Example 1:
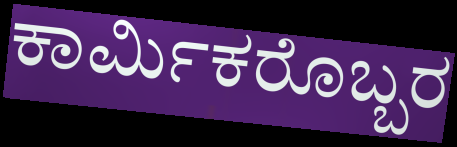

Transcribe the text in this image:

ಕಾರ್ಮಿಕರೊಬ್ಬರ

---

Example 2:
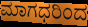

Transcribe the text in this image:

ಮಾಗಧರಿಂದ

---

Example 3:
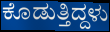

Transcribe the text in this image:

ಕೊಡುತ್ತಿದ್ದಳು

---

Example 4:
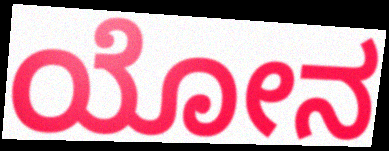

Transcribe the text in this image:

ಯೋನ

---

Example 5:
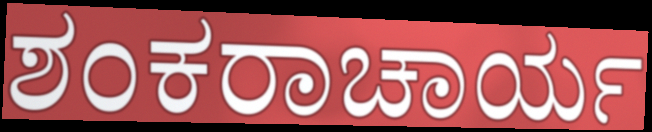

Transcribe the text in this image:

ಶಂಕರಾಚಾರ್ಯ